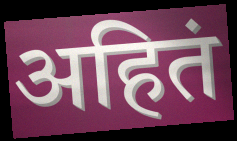
अहितं